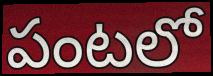
పంటలో